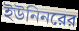
ইউনিনরের